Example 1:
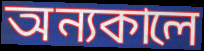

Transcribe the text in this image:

অন্যকালে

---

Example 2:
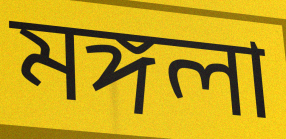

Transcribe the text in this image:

মঙ্গলা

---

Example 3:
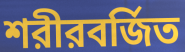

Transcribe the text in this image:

শরীরবর্জিত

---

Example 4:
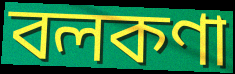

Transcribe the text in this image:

বলকণা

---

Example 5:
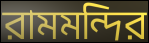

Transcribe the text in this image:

রামমন্দির